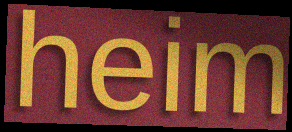
heim